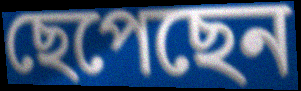
ছেপেছেন